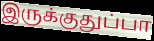
இருக்குதுப்பா